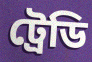
ট্রেডি